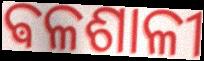
ଵଳଶାଳୀ